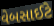
વેબસાઈટે